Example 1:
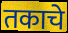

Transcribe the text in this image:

तकाचे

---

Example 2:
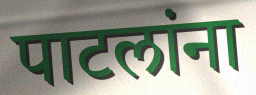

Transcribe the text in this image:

पाटलांना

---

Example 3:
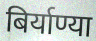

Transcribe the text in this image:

बिर्याण्या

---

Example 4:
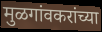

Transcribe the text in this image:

मुळगांवकरांच्या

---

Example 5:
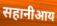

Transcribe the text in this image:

सहानीआय